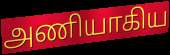
அணியாகிய